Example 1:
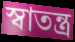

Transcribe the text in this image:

স্বাতন্ত্র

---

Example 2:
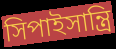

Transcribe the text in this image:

সিপাইসান্ত্রি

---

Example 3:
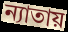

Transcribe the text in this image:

ন্যাতায়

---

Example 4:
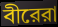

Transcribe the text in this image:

বীরেরা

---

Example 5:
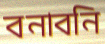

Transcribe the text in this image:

বনাবনি